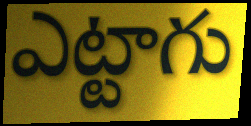
ఎట్టాగు